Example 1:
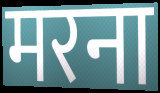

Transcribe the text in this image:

मरना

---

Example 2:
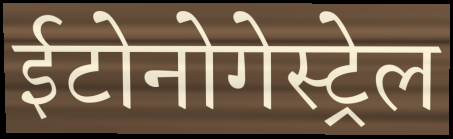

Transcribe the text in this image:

ईटोनोगेस्ट्रेल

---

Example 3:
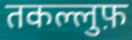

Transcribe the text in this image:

तकल्लुफ़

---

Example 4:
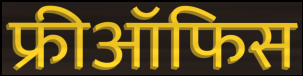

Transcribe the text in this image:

फ्रीऑफिस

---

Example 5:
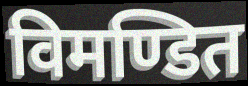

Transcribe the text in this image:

विमण्डित